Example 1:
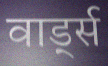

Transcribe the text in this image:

वार्ड्स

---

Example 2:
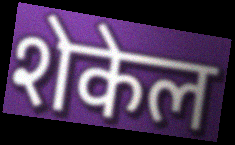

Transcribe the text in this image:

शेकेल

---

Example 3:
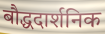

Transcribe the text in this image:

बौद्धदार्शनिक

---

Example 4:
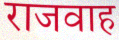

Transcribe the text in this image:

राजवाह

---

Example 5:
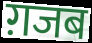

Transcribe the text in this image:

ग़जब